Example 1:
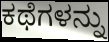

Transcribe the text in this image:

ಕಥೆಗಳನ್ನು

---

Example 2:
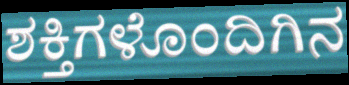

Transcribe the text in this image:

ಶಕ್ತಿಗಳೊಂದಿಗಿನ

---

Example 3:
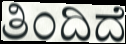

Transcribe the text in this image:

ತಿಂದಿದೆ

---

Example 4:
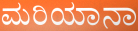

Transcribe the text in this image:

ಮರಿಯಾನಾ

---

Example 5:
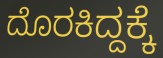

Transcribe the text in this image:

ದೊರಕಿದ್ದಕ್ಕೆ